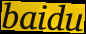
baidu